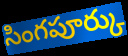
సింగపూర్కు